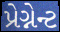
પ્રેગ્નેન્ટ